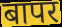
बापर